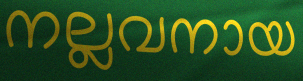
നല്ലവനായ